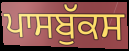
ਪਾਸਬੁੱਕਸ